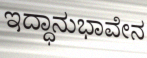
ಇದ್ಧಾನುಭಾವೇನ